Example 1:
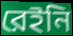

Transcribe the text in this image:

রেইনি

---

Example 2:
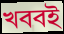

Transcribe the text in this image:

খববই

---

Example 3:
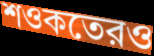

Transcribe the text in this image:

শওকতেরও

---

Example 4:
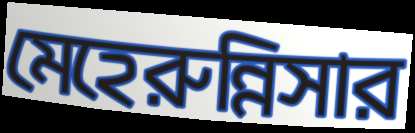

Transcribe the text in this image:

মেহেরুন্নিসার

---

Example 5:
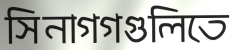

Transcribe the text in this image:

সিনাগগগুলিতে